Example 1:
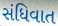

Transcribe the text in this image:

સંધિવાત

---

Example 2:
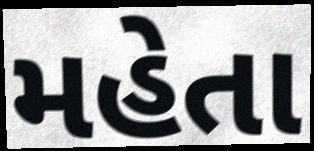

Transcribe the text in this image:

મહેતા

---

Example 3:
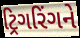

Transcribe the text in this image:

ટ્રિગરિંગને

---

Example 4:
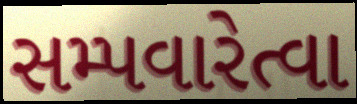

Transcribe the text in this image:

સમ્પવારેત્વા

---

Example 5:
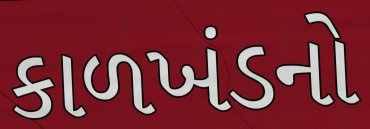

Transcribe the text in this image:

કાળખંડનો